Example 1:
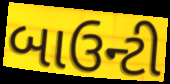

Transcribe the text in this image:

બાઉન્ટી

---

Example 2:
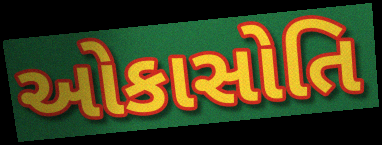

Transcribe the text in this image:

ઓકાસોતિ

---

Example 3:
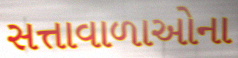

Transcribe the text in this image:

સત્તાવાળાઓના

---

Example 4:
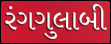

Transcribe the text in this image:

રંગગુલાબી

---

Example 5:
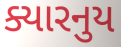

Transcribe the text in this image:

ક્યારનુય